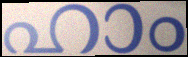
ഹാം